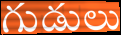
గుడులు